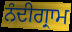
ਨੰਦੀਗ੍ਰਾਮ